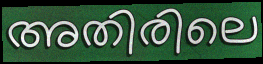
അതിരിലെ